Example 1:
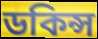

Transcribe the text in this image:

ডকিন্স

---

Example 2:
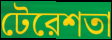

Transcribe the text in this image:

টেরেশতা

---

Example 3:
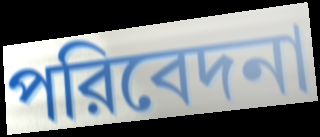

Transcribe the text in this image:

পরিবেদনা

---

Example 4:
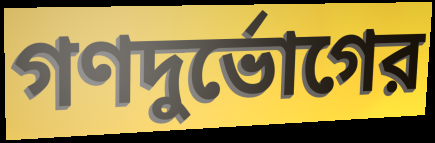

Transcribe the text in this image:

গণদুর্ভোগের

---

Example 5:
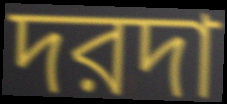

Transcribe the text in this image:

দরদা